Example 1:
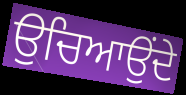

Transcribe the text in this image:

ਉਚਿਆਉਂਦੇ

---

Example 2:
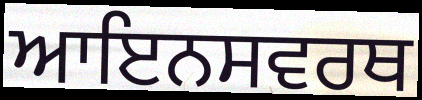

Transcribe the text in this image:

ਆਇਨਸਵਰਥ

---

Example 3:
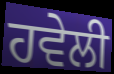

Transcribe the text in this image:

ਹਵੇਲੀ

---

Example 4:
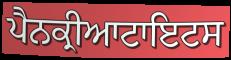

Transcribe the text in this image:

ਪੈਨਕ੍ਰੀਆਟਾਇਟਸ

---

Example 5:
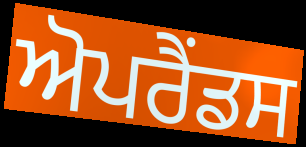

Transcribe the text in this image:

ਅੋਪਰੈਂਡਸ